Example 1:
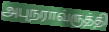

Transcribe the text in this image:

அபுநராவ்ருத்தி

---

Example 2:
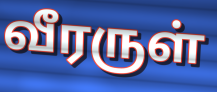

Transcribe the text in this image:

வீரருள்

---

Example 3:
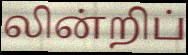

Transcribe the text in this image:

லின்றிப்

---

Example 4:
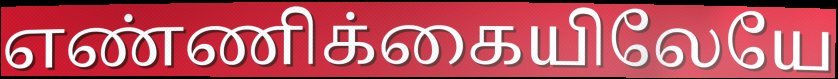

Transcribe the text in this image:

எண்ணிக்கையிலேயே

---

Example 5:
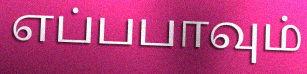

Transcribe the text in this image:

எப்பபாவும்